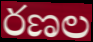
రణల